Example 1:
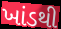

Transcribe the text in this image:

ખાંડથી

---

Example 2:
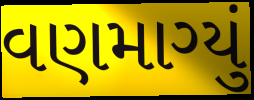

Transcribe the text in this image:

વણમાગ્યું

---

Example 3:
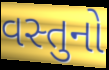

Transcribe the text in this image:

વસ્તુનો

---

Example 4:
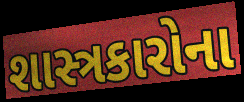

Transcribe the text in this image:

શાસ્ત્રકારોના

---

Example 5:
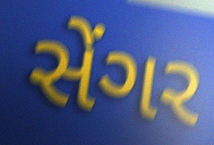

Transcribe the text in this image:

સેંગર